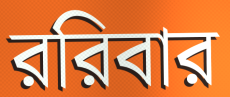
ররিবার